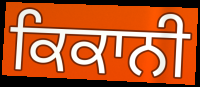
ਕਿਕਾਨੀ